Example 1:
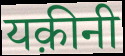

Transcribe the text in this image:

यक़ीनी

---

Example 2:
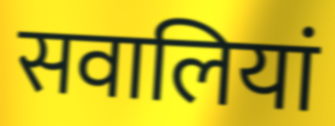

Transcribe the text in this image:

सवालियां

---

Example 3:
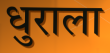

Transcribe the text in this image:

धुराला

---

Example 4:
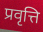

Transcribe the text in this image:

प्रवृत्ति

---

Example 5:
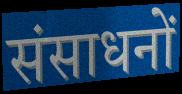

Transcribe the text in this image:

संसाधनों